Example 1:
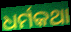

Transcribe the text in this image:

ଧର୍ମକଥା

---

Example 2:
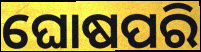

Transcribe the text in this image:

ଘୋଷପରି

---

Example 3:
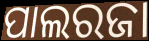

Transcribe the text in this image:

ପାଲରଜା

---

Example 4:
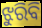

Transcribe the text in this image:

ଝୁରିବି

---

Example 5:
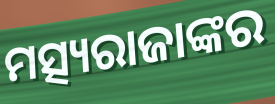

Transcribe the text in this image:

ମତ୍ସ୍ୟରାଜାଙ୍କର